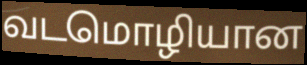
வடமொழியான